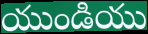
యుండియు